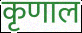
कृणाल